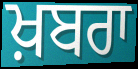
ਖ਼ਬਰਾ